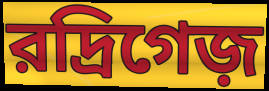
রদ্রিগেজ়